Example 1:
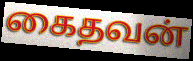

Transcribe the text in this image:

கைதவன்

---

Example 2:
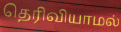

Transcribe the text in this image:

தெரிவியாமல்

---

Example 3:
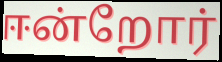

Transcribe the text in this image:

ஈன்றோர்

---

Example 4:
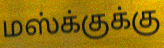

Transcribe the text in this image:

மஸ்க்குக்கு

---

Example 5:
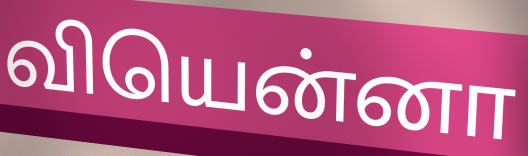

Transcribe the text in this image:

வியென்னா